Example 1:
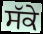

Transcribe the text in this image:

ਸੱਕੇ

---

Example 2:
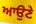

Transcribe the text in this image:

ਆਉਣੇ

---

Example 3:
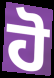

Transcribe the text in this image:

ਹੋ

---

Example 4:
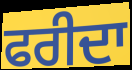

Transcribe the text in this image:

ਫਰੀਦਾ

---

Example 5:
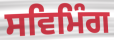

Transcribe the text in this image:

ਸਵਿਮਿੰਗ